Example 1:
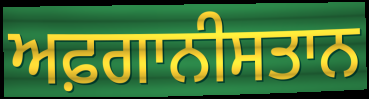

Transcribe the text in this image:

ਅਫ਼ਗਾਨੀਸਤਾਨ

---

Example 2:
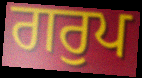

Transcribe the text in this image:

ਗਰੁਪ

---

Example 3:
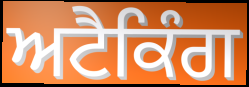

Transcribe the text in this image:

ਅਟੈਕਿੰਗ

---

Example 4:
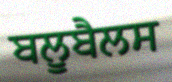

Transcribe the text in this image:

ਬਲੂਬੈਲਸ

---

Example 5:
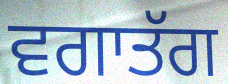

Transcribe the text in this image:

ਵਗਾਤੱਗ